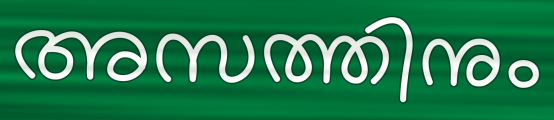
അസത്തിനും